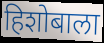
हिशोबाला